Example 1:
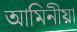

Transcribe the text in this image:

আমিনীয়া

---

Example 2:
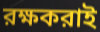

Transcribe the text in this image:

রক্ষকরাই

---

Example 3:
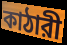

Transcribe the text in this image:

কাঠারী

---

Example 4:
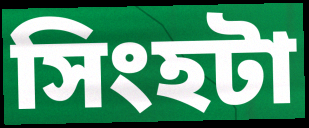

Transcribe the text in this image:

সিংহটা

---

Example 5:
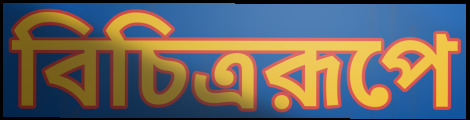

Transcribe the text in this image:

বিচিত্ররূপে